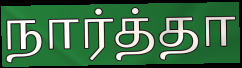
நார்த்தா